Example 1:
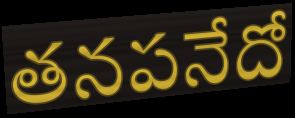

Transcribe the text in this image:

తనపనేదో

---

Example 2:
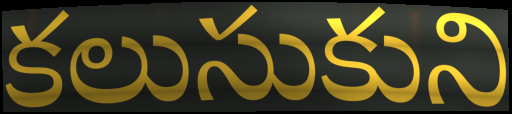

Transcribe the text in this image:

కలుసుకుని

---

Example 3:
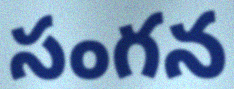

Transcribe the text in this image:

సంగన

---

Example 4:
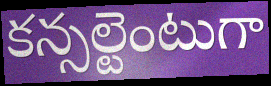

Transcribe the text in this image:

కన్సల్టెంటుగా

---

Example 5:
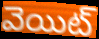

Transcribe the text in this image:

వెయిట్